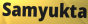
Samyukta